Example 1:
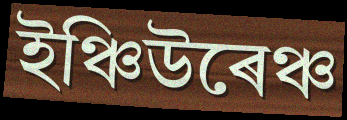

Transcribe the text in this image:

ইঞ্চিউৰেঞ্চ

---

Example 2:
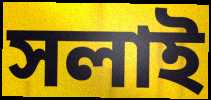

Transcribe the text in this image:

সলাই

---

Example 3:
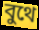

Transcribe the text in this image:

বুথে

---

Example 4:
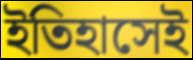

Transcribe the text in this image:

ইতিহাসেই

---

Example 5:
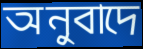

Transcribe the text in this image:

অনুবাদে